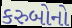
કરુબોનો